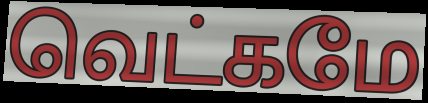
வெட்கமே